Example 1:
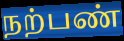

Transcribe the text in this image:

நற்பண்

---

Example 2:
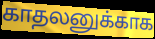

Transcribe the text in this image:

காதலனுக்காக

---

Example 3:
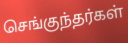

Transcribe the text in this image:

செங்குந்தர்கள்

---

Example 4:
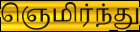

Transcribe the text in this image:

ஞெமிர்ந்து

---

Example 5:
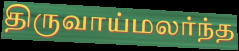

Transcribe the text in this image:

திருவாய்மலர்ந்த